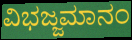
ವಿಭಜ್ಜಮಾನಂ